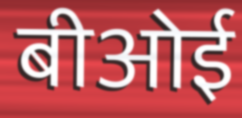
बीओई